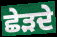
ਛੇੜਦੇ